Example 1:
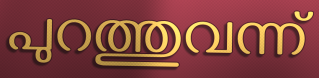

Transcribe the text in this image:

പുറത്തുവന്ന്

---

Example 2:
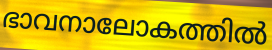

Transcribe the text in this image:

ഭാവനാലോകത്തിൽ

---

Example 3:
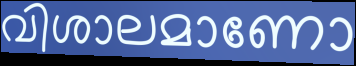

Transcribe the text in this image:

വിശാലമാണോ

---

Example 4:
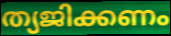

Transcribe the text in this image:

ത്യജിക്കണം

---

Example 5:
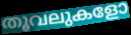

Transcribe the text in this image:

തൂവലുകളോ